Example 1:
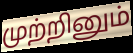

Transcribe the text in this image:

முற்றினும்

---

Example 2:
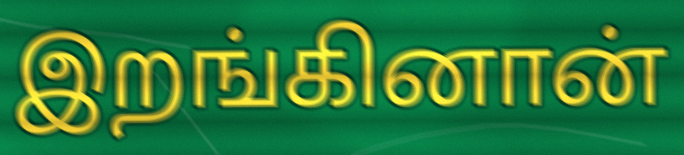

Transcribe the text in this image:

இறங்கினான்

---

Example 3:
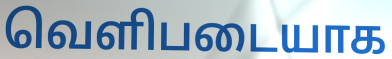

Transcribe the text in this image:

வெளிபடையாக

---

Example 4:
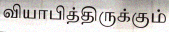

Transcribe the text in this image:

வியாபித்திருக்கும்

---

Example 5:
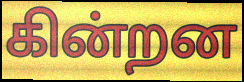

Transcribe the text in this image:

கின்றன